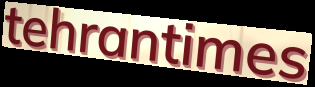
tehrantimes